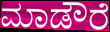
ಮಾಡೌರೆ